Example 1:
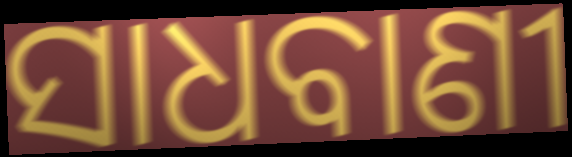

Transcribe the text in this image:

ସାଧବାଣୀ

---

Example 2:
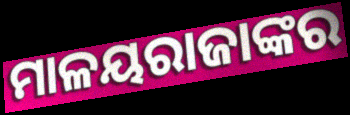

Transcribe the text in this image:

ମାଳୟରାଜାଙ୍କର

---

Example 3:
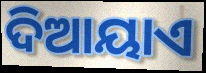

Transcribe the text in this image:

ଦିଆୟାଏ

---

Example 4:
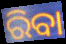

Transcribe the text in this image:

ରିବା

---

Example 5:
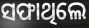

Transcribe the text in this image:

ସଫାଥିଲେ